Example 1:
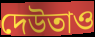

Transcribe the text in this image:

দেউতাও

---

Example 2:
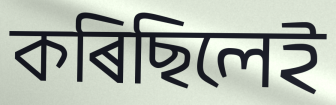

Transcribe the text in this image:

কৰিছিলেই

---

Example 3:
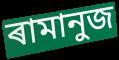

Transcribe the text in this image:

ৰামানুজ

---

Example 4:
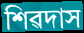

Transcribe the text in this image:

শিৱদাস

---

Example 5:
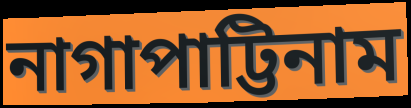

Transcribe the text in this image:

নাগাপাট্টিনাম